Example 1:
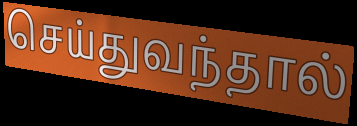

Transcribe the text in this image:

செய்துவந்தால்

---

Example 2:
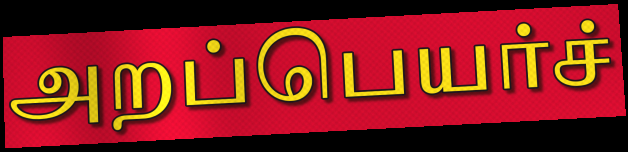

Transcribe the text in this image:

அறப்பெயர்ச்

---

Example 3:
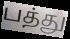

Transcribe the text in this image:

பத்து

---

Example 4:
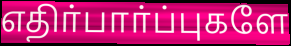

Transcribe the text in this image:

எதிர்பார்ப்புகளே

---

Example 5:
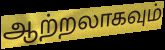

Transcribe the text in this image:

ஆற்றலாகவும்